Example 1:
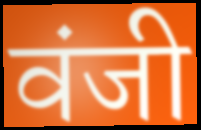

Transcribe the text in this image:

वंजी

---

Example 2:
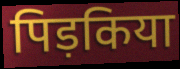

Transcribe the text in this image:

पिड़किया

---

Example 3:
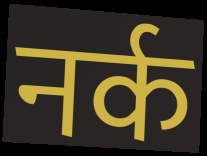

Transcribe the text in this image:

नर्क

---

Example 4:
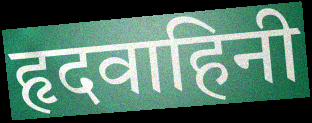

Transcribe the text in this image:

हृदवाहिनी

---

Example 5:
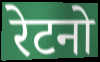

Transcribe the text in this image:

रेटनो